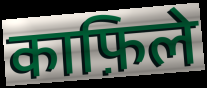
काफ़िले